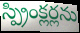
స్ప్రింక్లర్లను